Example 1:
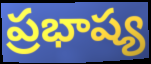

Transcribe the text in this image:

ప్రభాష్య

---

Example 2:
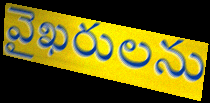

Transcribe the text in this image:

వైఖరులను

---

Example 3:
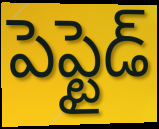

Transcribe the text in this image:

పెప్టైడ్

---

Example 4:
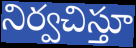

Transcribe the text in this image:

నిర్వచిస్తూ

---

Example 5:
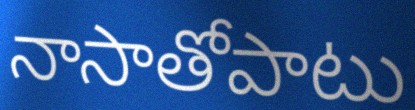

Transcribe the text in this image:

నాసాతోపాటు